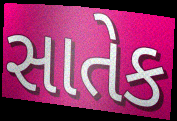
સાતેક